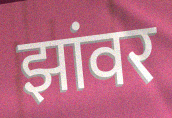
झांवर